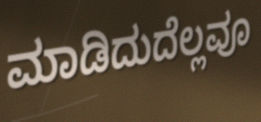
ಮಾಡಿದುದೆಲ್ಲವೂ